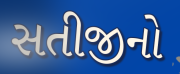
સતીજીનો